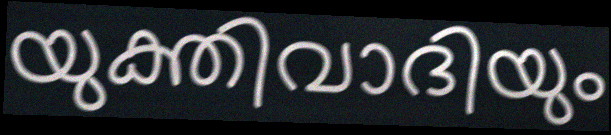
യുക്തിവാദിയും